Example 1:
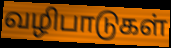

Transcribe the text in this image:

வழிபாடுகள்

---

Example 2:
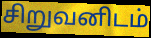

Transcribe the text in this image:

சிறுவனிடம்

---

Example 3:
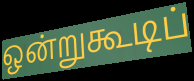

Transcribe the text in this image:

ஒன்றுகூடிப்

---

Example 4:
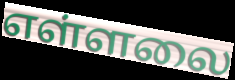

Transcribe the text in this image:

எள்ளலை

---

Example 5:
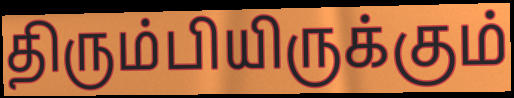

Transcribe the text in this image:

திரும்பியிருக்கும்